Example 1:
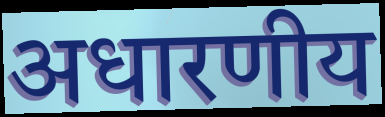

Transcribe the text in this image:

अधारणीय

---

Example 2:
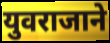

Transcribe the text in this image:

युवराजाने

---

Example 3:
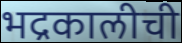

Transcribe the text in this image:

भद्रकालीची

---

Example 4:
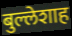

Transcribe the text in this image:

बुल्लेशाह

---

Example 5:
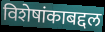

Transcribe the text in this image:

विशेषांकाबद्दल